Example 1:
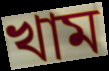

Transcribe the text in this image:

খাম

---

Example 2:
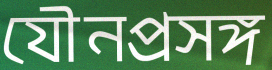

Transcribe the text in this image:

যৌনপ্রসঙ্গ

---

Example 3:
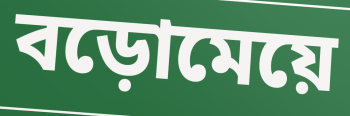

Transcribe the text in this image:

বড়োমেয়ে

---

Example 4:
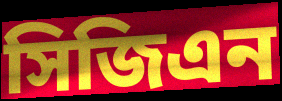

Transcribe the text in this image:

সিজিএন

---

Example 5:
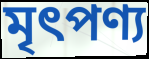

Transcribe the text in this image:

মৃৎপণ্য